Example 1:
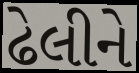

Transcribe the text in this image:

ઢેલીને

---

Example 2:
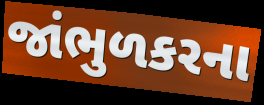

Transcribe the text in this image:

જાંભુળકરના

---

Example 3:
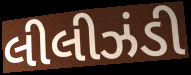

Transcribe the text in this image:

લીલીઝંડી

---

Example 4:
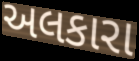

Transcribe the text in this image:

અલકારા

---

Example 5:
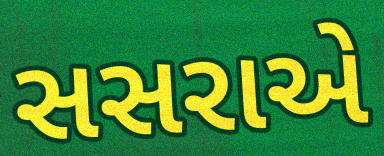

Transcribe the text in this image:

સસરાએ